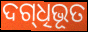
ଦଗ୍‌ଧିଭୂତ